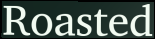
Roasted